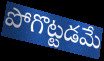
పోగొట్టడమే